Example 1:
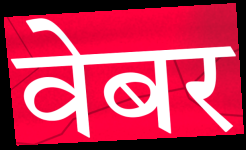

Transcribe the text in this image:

वेबर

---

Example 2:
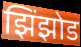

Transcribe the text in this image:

झिंझोड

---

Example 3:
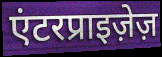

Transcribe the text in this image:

एंटरप्राइज़ेज़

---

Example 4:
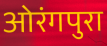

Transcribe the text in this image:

ओरंगपुरा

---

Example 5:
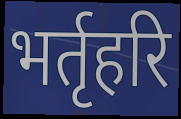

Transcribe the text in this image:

भर्तृहरि